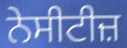
ਨੇਸੀਟੀਜ਼